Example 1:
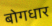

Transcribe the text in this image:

बोगधार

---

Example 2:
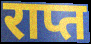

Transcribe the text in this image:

राप्त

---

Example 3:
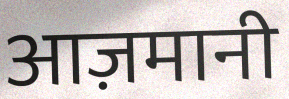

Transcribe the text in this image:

आज़मानी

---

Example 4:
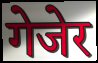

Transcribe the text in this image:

गेजेर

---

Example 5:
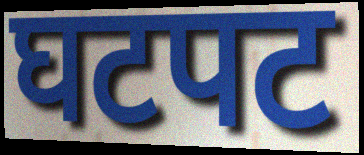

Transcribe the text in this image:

घटपट